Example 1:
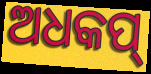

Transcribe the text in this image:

ଅଧକପ୍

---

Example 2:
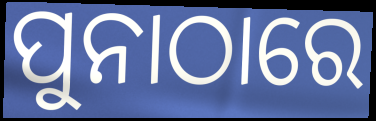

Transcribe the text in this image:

ପୁନାଠାରେ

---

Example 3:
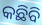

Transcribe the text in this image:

କଛିବି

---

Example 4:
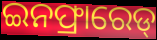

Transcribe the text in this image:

ଇନଫ୍ରାରେଡ୍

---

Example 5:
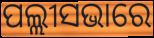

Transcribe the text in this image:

ପଲ୍ଲୀସଭାରେ